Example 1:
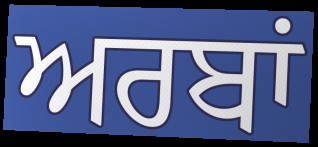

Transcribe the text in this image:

ਅਰਬਾਂ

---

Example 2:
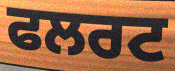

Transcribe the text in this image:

ਫਲਰਟ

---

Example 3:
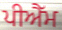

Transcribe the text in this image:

ਪੀਐੱਮ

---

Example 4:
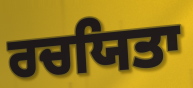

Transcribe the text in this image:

ਰਚਯਿਤਾ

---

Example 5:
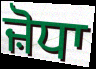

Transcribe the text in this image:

ਜ਼ੋਧਾ